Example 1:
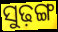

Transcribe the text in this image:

ସୁଢ଼ଙ୍ଗ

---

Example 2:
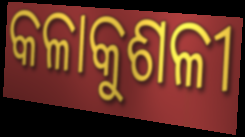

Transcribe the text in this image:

କଳାକୁଶଳୀ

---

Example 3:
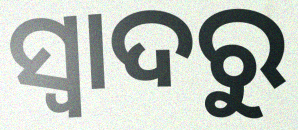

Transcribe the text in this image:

ସ୍ବାଦରୁ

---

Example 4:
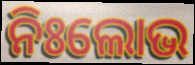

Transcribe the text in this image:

ନିଃଲୋଭ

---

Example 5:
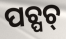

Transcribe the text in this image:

ପଚ୍ପଚ୍